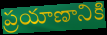
ప్రయాణానికి